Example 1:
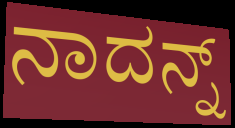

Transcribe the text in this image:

ನಾದನ್ನ್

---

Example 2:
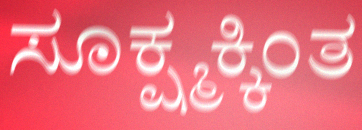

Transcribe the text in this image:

ಸೂಕ್ಷ್ಮಕ್ಕಿಂತ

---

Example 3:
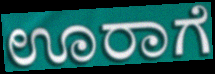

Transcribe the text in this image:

ಊರಾಗೆ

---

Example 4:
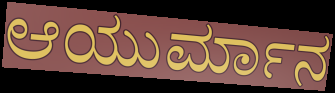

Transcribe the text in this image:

ಆಯುರ್ಮಾನ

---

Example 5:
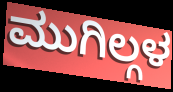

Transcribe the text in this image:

ಮುಗಿಲ್ಗಳ